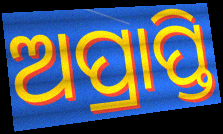
ଅପ୍ରାପ୍ତି